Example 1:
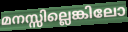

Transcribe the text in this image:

മനസ്സില്ലെങ്കിലോ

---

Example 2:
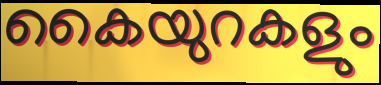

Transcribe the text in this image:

കൈയുറകളും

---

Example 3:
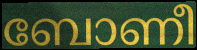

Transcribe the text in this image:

ബോണീ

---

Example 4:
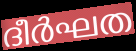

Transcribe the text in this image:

ദീർഘത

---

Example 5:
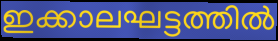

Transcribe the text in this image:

ഇക്കാലഘട്ടത്തിൽ